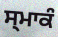
ਸ੍ਮਾਕੰ